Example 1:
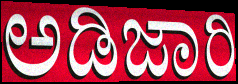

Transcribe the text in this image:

ಅಡಿಜಾರಿ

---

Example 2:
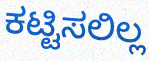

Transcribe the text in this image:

ಕಟ್ಟಿಸಲಿಲ್ಲ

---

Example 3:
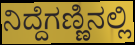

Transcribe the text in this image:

ನಿದ್ದೆಗಣ್ಣಿನಲ್ಲಿ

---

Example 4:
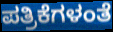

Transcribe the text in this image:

ಪತ್ರಿಕೆಗಳಂತೆ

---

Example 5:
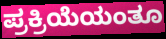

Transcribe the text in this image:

ಪ್ರಕ್ರಿಯೆಯಂತೂ